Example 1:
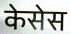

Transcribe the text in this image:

केसेस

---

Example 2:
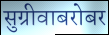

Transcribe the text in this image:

सुग्रीवाबरोबर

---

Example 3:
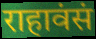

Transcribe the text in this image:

राहावंसं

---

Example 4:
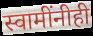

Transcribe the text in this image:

स्वामींनीही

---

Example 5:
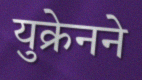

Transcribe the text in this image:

युक्रेनने